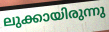
ലുക്കായിരുന്നു